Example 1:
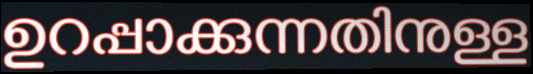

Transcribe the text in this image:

ഉറപ്പാക്കുന്നതിനുള്ള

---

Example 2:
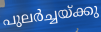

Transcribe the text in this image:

പുലർച്ചയ്ക്കു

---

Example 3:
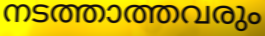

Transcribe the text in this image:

നടത്താത്തവരും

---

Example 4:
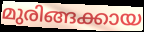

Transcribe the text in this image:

മുരിങ്ങക്കായ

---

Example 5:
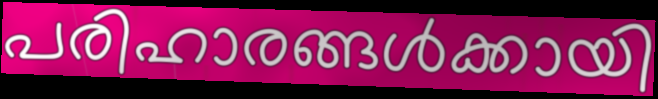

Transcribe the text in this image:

പരിഹാരങ്ങൾക്കായി